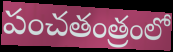
పంచతంత్రంలో